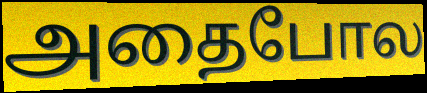
அதைபோல